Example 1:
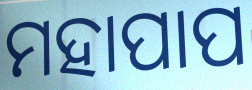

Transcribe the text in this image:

ମହାପାପ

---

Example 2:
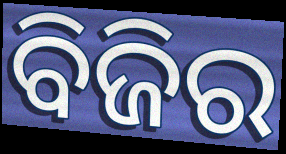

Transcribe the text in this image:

ବିଜିର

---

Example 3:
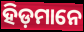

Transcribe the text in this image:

ହିଡ଼ମାନେ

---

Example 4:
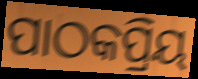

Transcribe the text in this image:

ପାଠକପ୍ରିୟ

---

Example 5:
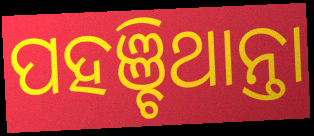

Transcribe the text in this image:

ପହଞ୍ଚିଥାନ୍ତା